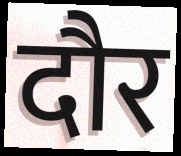
दौर